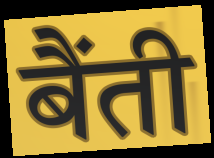
बैंती